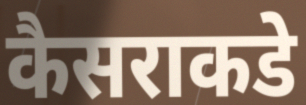
कैसराकडे